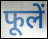
फूलें